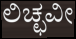
ಲಿಚ್ಛವೀ